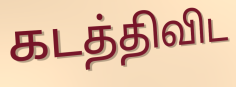
கடத்திவிட